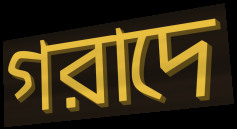
গরাদে